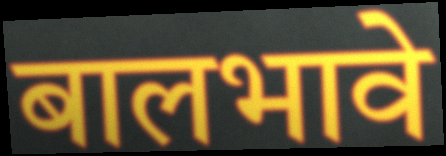
बालभावे